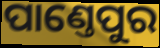
ପାଣ୍ତେପୁର